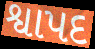
શ્વાપદ